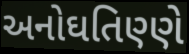
અનોઘતિણ્ણે